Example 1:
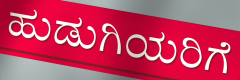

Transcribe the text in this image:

ಹುಡುಗಿಯರಿಗೆ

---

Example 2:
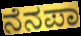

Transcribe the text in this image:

ನೆನಪಾ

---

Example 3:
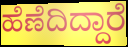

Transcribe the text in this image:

ಹೆಣೆದಿದ್ದಾರೆ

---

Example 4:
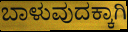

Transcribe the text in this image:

ಬಾಳುವುದಕ್ಕಾಗಿ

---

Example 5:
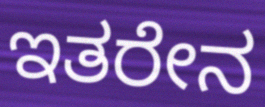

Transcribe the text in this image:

ಇತರೇನ